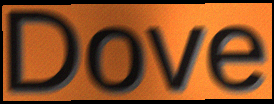
Dove